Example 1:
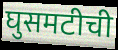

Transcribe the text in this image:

घुसमटीची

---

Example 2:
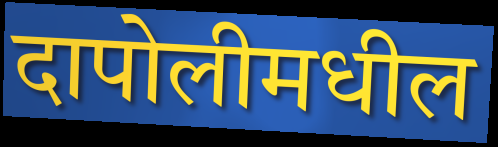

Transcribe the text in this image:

दापोलीमधील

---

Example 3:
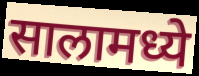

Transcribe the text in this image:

सालामध्ये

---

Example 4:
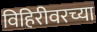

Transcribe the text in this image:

विहिरीवरच्या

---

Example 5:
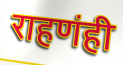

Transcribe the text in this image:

राहणंही